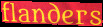
flanders